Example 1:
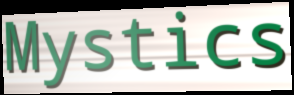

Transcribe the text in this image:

Mystics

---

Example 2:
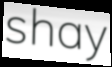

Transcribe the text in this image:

shay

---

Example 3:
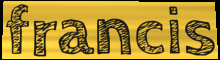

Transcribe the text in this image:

francis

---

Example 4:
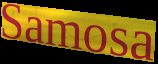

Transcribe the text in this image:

Samosa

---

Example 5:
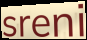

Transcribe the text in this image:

sreni